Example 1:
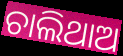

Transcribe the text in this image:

ଚାଲିଥାଅ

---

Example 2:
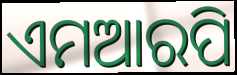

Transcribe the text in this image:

ଏମଆରପି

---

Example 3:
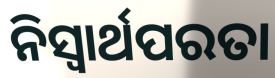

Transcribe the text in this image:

ନିସ୍ଵାର୍ଥପରତା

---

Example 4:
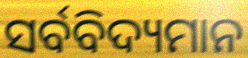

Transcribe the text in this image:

ସର୍ବବିଦ୍ୟମାନ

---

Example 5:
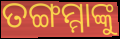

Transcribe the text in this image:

ତଙ୍ଗମ୍ମାଙ୍କୁ